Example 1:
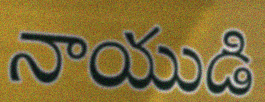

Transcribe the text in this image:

నాయుడి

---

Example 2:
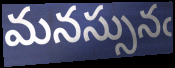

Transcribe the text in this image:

మనస్సునఁ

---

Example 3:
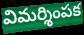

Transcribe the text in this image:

విమర్శింపక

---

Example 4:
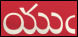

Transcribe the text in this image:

యుఁ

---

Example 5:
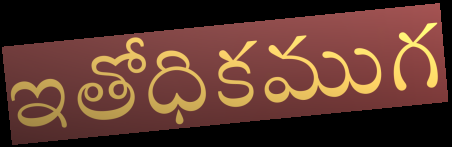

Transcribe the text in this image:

ఇతోధికముగ